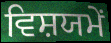
ਵਿਸ਼ਯਮੇਂ